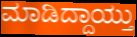
ಮಾಡಿದ್ದಾಯ್ತು